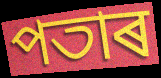
পতাৰ